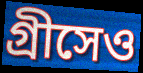
গ্রীসেও